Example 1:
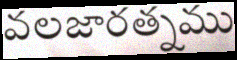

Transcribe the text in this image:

వలజారత్నము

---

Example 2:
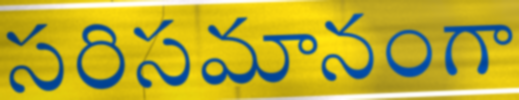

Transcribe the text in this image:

సరిసమానంగా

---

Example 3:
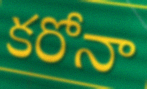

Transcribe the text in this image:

కరోనా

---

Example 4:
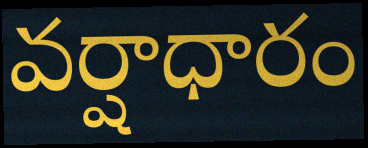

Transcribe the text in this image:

వర్షాధారం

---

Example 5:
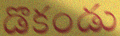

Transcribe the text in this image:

డొకండు